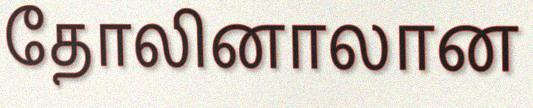
தோலினாலான